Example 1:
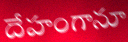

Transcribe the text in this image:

దేహంగానూ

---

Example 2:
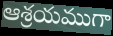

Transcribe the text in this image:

ఆశ్రయముగా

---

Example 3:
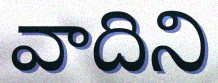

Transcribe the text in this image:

వాదిని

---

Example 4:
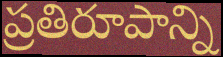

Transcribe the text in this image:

ప్రతిరూపాన్ని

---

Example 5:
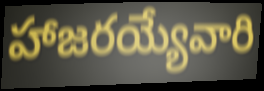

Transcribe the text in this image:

హాజరయ్యేవారి